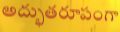
అద్భుతరూపంగా